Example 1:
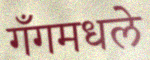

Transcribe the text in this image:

गँगमधले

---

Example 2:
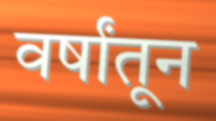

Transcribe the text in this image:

वर्षांतून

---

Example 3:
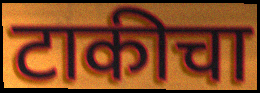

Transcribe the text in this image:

टाकीचा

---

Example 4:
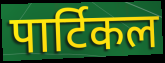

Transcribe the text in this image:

पार्टिकल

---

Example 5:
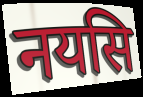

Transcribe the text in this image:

नयसि